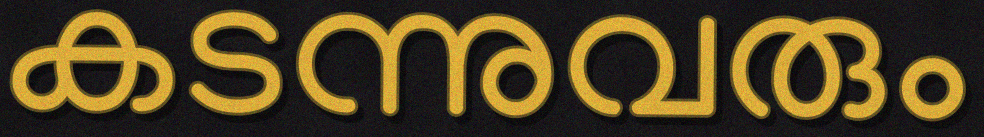
കടന്നുവരും